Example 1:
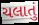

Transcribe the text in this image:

ચલાતું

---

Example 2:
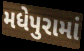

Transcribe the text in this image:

મધેપુરામાં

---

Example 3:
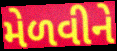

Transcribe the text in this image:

મેળવીને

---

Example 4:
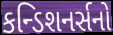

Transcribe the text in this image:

કન્ડિશનર્સનો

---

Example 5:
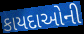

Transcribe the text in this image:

કાયદાઓની